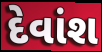
દેવાંશ